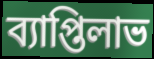
ব্যাপ্তিলাভ